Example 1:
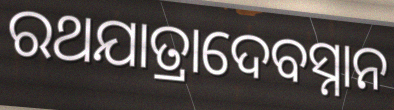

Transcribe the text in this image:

ରଥଯାତ୍ରାଦେବସ୍ନାନ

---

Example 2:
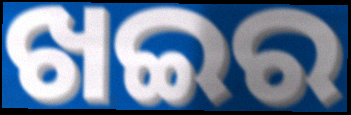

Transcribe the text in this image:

ଖଇର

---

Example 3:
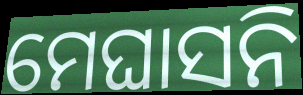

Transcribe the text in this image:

ମେଘାସନି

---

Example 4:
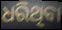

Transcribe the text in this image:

ଧରିଥିବା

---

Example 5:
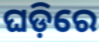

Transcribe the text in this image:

ଘଡ଼ିରେ